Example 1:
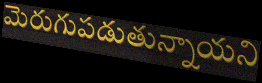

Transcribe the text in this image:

మెరుగుపడుతున్నాయని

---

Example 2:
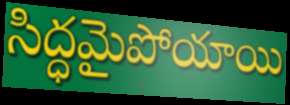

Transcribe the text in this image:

సిద్ధమైపోయాయి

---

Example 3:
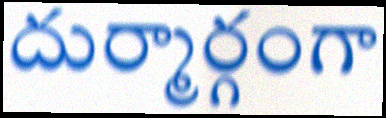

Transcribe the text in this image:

దుర్మార్గంగా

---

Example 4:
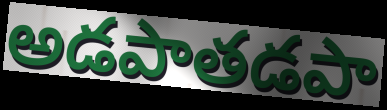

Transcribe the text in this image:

అడపాతడపా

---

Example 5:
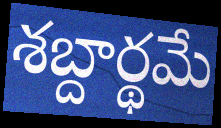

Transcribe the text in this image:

శబ్దార్థమే